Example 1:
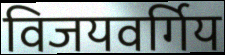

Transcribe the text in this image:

विजयवर्गिय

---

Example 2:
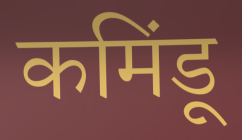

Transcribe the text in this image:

कमिंडू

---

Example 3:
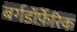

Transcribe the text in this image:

बर्गडॉर्फ़ेरिक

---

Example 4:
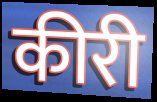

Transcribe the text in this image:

कीरी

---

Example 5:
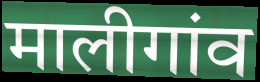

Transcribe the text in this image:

मालीगांव